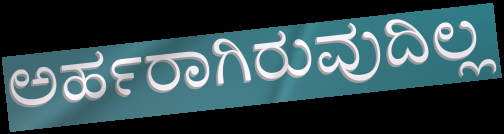
ಅರ್ಹರಾಗಿರುವುದಿಲ್ಲ